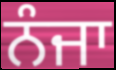
ਨੰਜਾ